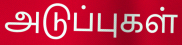
அடுப்புகள்